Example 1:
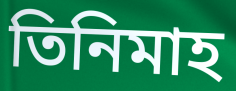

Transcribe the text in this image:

তিনিমাহ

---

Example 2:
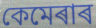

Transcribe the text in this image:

কেমেৰাৰ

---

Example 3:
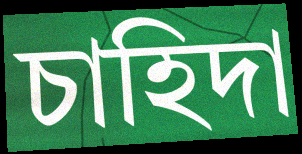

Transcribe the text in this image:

চাহিদা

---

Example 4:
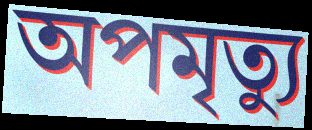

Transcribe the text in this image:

অপমৃত্যু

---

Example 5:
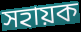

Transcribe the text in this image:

সহায়ক